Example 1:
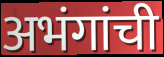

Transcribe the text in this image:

अभंगांची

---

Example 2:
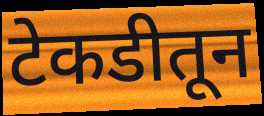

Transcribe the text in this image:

टेकडीतून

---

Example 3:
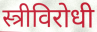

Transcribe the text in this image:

स्त्रीविरोधी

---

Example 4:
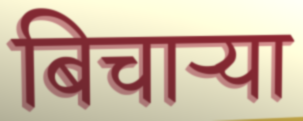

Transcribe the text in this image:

बिचाऱ्या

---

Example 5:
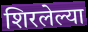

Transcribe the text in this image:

शिरलेल्या